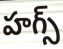
హగ్స్